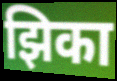
झिका